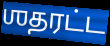
ஶதரட்ட